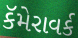
કૅમેરાવર્ક